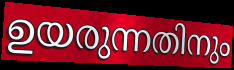
ഉയരുന്നതിനും